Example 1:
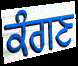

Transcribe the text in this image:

ਕੰਗਣ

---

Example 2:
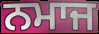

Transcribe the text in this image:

ਨਮਾਜ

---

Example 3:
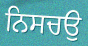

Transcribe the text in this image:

ਨਿਸਚਉ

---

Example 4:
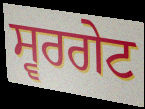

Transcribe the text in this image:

ਸ੍ਵਰਗੇਟ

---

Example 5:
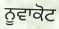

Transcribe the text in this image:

ਨੂਵਾਕੋਟ